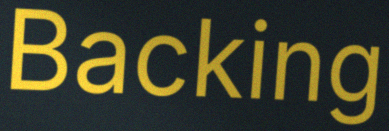
Backing